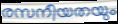
രസനീയതയും